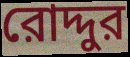
রোদ্দুর